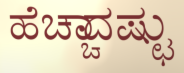
ಹೆಚ್ಚಾದಷ್ಟು